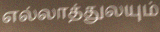
எல்லாத்துலயும்